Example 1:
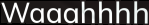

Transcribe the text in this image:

Waaahhhh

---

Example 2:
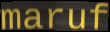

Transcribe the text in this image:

maruf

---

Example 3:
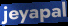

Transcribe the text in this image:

jeyapal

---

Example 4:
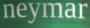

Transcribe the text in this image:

neymar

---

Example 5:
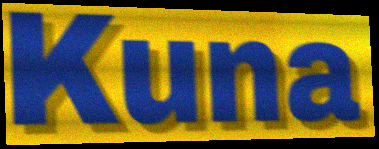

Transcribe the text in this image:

Kuna